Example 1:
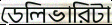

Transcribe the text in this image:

ডেলিভারিটা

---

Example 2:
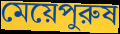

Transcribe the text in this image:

মেয়েপুরুষ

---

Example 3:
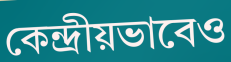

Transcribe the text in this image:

কেন্দ্রীয়ভাবেও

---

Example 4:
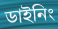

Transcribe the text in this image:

ডাইনিং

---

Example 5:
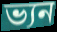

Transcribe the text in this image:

ভ্যন